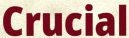
Crucial